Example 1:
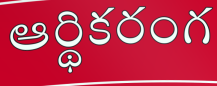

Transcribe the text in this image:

ఆర్థికరంగ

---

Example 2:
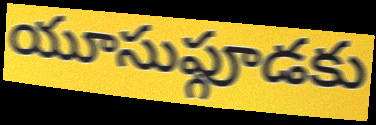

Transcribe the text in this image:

యూసుఫ్గూడకు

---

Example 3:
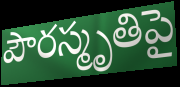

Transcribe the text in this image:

పౌరస్మృతిపై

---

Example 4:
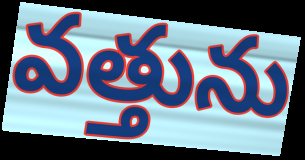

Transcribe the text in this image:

వత్తును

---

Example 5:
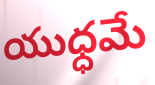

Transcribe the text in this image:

యుధ్ధమే